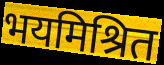
भयमिश्रित